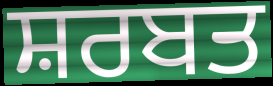
ਸ਼ਰਬਤ